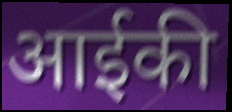
आईकी